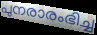
പുനരാരംഭിച്ച